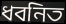
ধবনিত